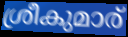
ശ്രീകുമാര്